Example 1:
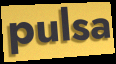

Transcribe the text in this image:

pulsa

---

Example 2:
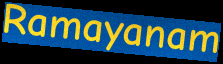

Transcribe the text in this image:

Ramayanam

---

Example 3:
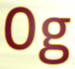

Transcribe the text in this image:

Og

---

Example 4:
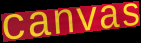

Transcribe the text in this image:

canvas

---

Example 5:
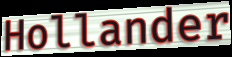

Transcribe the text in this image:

Hollander